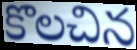
కొలచిన